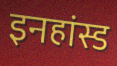
इनहांस्ड